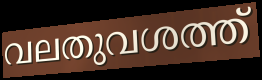
വലതുവശത്ത്